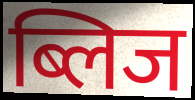
ब्लिज